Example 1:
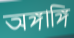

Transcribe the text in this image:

অঙ্গাঙ্গি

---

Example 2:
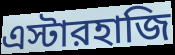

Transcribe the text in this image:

এস্টারহাজি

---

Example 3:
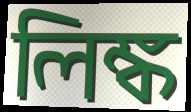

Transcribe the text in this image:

লিঙ্ক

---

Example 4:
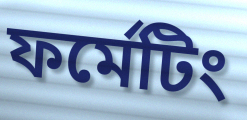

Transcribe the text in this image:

ফর্মেটিং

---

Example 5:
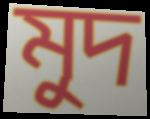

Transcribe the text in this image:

মুদ